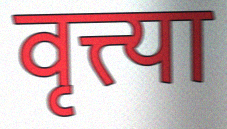
वृत्त्या